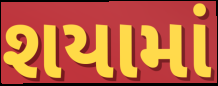
શયામાં